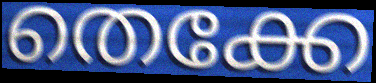
തെക്കേ